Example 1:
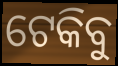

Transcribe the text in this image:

ଟେକିବୁ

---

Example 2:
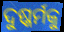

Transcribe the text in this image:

ଦୁଷ୍କର୍ମକୁ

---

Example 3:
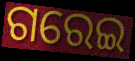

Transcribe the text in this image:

ଗରେଇ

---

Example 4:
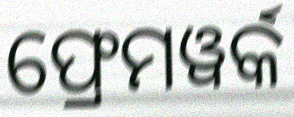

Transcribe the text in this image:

ଫ୍ରେମୱର୍କ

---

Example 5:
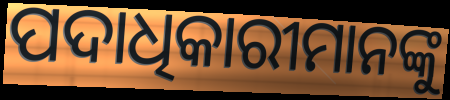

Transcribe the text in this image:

ପଦାଧିକାରୀମାନଙ୍କୁ